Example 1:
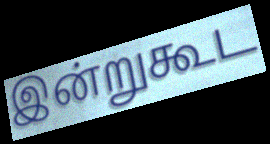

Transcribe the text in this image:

இன்றுகூட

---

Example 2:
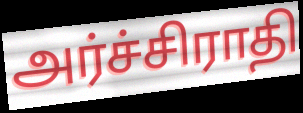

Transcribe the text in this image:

அர்ச்சிராதி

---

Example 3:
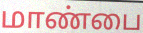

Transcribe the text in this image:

மாண்பை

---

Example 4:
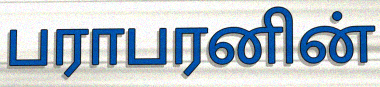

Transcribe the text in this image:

பராபரனின்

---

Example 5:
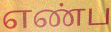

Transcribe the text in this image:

எண்ப